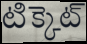
టిక్కెట్